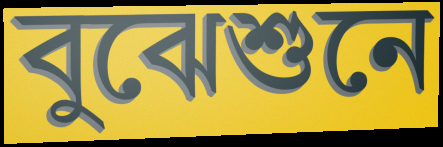
বুঝেশুনে